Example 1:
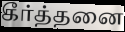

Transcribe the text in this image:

கீர்த்தனை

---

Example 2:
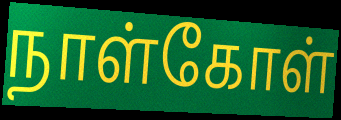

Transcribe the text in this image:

நாள்கோள்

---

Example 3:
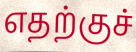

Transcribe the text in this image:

எதற்குச்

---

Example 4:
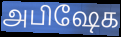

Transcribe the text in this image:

அபிஷேக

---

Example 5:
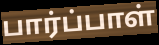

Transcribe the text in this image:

பார்ப்பாள்